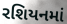
રશિયનમાં